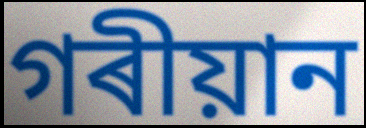
গৰীয়ান